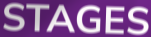
STAGES